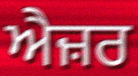
ਐਜ਼ਰ